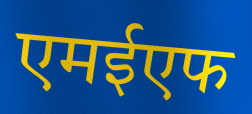
एमईएफ